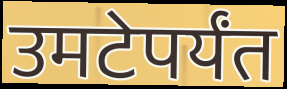
उमटेपर्यंत